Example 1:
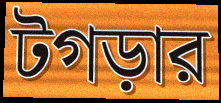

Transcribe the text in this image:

টগড়ার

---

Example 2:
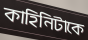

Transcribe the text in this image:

কাহিনিটাকে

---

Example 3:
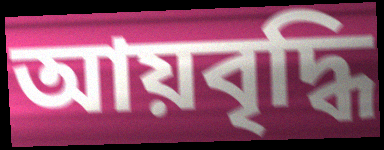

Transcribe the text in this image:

আয়বৃদ্ধি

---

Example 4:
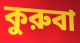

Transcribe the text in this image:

কুরুবা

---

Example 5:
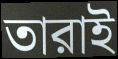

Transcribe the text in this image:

তারাই